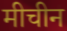
मीचीन